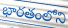
భారతంలోని